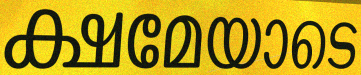
ക്ഷമേയാടെ